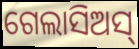
ଗେଲାସିଅସ୍